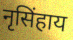
नृसिंहाय